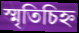
স্মৃতিচিহ্ন